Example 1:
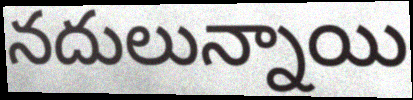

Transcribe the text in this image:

నదులున్నాయి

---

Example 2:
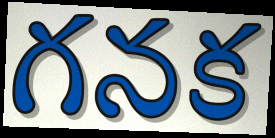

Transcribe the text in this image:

గనక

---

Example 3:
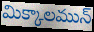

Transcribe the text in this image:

మిక్కాలమున్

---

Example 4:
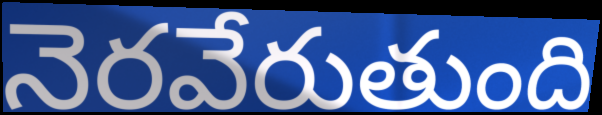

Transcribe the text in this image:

నెరవేరుతుంది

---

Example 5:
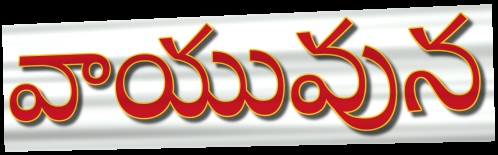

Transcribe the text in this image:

వాయువున